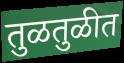
तुळतुळीत